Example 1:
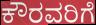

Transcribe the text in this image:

ಕೌರವರಿಗೆ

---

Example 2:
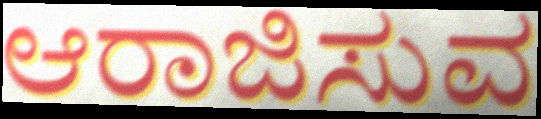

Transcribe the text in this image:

ಆರಾಜಿಸುವ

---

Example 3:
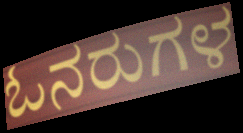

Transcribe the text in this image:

ಓನರುಗಳ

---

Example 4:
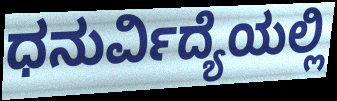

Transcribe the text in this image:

ಧನುರ್ವಿದ್ಯೆಯಲ್ಲಿ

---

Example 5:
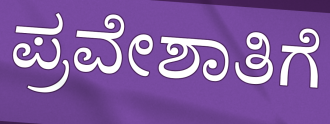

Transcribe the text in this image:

ಪ್ರವೇಶಾತಿಗೆ